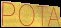
POTA